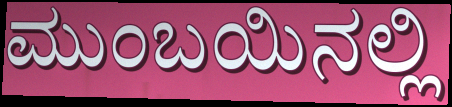
ಮುಂಬಯಿನಲ್ಲಿ